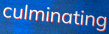
culminating